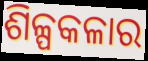
ଶିଳ୍ପକଳାର